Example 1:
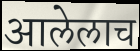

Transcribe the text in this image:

आलेलाच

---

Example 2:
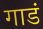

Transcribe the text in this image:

गाडं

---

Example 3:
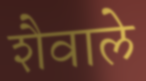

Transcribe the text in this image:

शैवाले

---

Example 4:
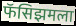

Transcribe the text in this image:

फॅसिझमला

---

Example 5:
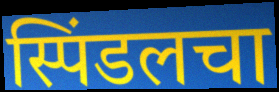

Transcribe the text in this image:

स्पिंडलचा